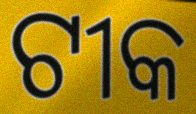
ଟୀକ